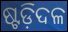
ଷ୍ଟଡ଼ିଦଳ